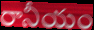
రానీయం